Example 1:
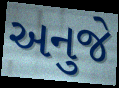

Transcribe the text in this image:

અનુજે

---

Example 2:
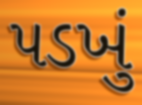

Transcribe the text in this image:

પડખું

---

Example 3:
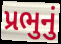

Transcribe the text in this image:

પ્રભુનું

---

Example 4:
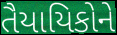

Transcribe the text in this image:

તૈયાયિકોને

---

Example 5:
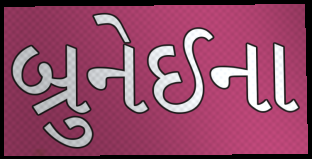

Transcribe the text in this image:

બ્રુનેઈના